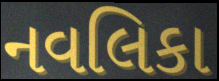
નવલિકા